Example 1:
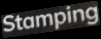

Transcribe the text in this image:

Stamping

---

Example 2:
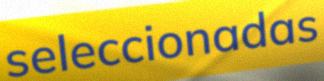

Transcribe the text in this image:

seleccionadas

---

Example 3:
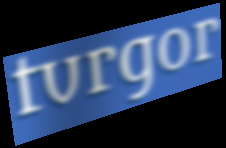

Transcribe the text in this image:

turgor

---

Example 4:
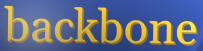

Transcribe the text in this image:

backbone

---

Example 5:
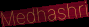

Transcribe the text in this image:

Medhashri